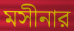
মসীনার